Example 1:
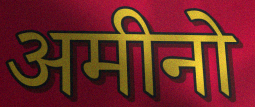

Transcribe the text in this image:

अमीनो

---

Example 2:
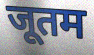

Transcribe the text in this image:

जूतम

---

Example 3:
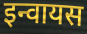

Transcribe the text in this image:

इन्वायस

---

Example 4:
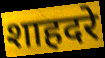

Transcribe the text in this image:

शाहदरे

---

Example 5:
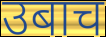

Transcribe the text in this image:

उबाच